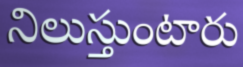
నిలుస్తుంటారు